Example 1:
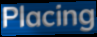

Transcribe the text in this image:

Placing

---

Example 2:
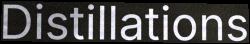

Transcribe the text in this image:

Distillations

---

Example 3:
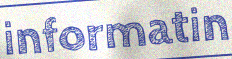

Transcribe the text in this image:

informatin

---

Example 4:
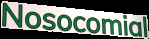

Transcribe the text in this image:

Nosocomial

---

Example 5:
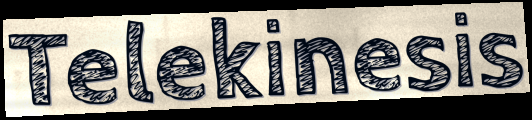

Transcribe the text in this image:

Telekinesis